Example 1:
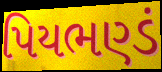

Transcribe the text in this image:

પિયભણ્ડં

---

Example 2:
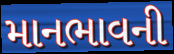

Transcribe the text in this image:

માનભાવની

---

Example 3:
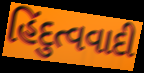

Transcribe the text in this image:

હિંદુત્વવાદી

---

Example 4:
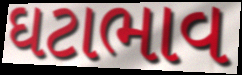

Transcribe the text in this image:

ઘટાભાવ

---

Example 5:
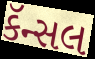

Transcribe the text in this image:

કૅન્સલ